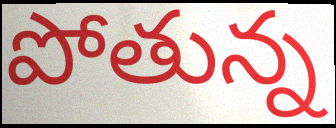
పోతున్న